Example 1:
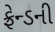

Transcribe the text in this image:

ફ્રેન્ડની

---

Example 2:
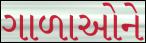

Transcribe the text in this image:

ગાળાઓને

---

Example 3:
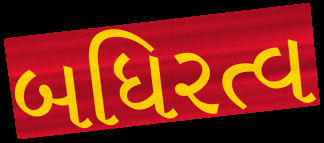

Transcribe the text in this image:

બધિરત્વ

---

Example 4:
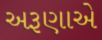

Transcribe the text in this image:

અરૂણાએ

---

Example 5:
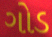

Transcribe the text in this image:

ગોડ